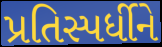
પ્રતિસ્પર્ધીને